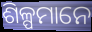
ଶିଳ୍ପମାନେ